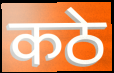
कठे